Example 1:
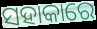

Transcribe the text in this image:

ସହାକାରେ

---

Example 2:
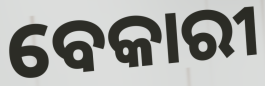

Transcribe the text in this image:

ବେକାରୀ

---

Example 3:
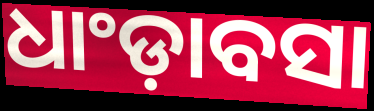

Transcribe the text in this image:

ଧାଂଡ଼ାବସା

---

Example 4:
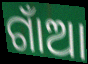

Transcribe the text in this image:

ଗାଁଆ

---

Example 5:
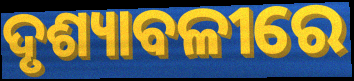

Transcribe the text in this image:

ଦୃଶ୍ୟାବଳୀରେ